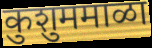
कुशुममाळा